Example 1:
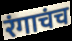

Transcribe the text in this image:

रंगाचंच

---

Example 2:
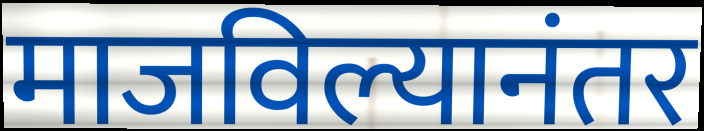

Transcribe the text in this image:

माजविल्यानंतर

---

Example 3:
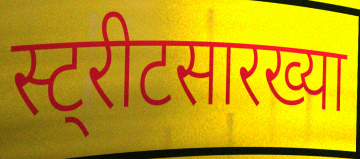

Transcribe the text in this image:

स्ट्रीटसारख्या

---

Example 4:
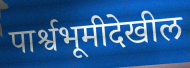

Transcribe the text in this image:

पार्श्वभूमीदेखील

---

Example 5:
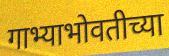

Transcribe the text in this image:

गाभ्याभोवतीच्या